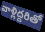
వాళ్లిద్దరితో